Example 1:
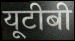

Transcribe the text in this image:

यूटीबी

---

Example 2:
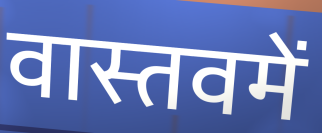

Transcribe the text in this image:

वास्तवमें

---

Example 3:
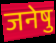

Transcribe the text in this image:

जनेषु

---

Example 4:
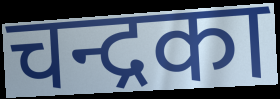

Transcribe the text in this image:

चन्द्रका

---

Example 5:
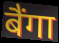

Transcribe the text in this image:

बैंगा